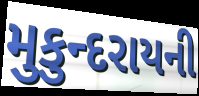
મુકુન્દરાયની